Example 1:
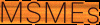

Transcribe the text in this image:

MSMEs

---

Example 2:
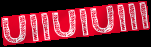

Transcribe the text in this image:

UIIUIUIII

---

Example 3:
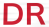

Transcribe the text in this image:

DR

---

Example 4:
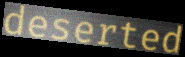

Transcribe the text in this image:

deserted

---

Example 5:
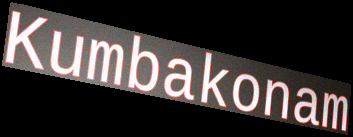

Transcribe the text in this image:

Kumbakonam